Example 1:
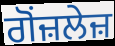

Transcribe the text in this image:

ਗੋਂਜ਼ਲੇਜ਼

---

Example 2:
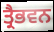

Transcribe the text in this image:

ਤ੍ਰੈਭਵਨ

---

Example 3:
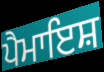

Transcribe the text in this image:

ਪੈਮਾਇਸ਼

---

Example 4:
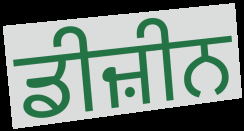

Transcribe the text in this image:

ਡੀਜ਼ੀਨ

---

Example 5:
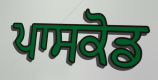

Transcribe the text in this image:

ਪਾਸਕੋਡ